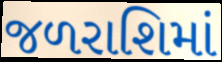
જળરાશિમાં